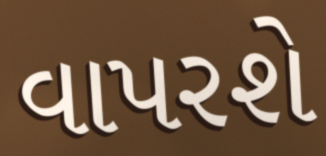
વાપરશે